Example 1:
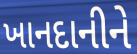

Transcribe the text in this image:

ખાનદાનીને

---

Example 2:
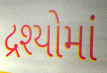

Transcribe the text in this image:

દ્રશ્યોમાં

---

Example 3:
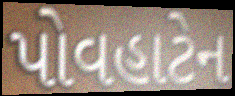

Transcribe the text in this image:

પોવહાટેન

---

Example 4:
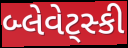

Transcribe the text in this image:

બ્લેવેટ્સ્કી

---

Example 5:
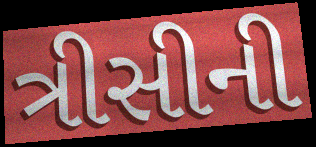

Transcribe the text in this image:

ત્રીસીની